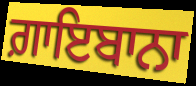
ਗ਼ਾਇਬਾਨਾ